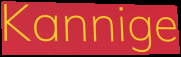
Kannige